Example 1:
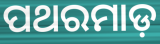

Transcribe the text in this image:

ପଥରମାଡ଼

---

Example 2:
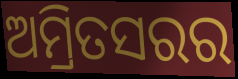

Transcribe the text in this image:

ଅମ୍ରିତସରର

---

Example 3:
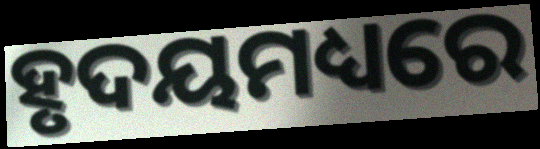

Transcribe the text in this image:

ହୃଦୟମଧ୍ୟରେ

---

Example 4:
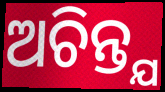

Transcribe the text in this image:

ଅଚିନ୍ତ୍ଯ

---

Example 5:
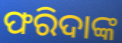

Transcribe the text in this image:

ଫରିଦାଙ୍କ